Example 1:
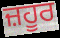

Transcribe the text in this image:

ਜ਼ਹੂਰ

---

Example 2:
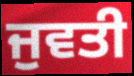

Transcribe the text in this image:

ਜੁਵਤੀ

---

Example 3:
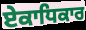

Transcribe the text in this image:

ਏਕਾਧਿਕਾਰ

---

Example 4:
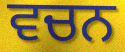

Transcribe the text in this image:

ਵਚਨ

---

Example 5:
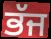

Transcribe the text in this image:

ਭੱਜ